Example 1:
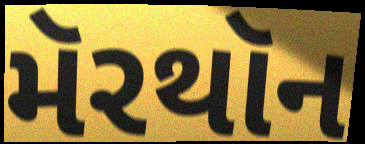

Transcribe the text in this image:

મૅરથૉન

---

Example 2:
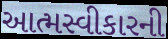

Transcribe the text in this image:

આત્મસ્વીકારની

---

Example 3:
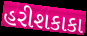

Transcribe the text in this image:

હરીશકાકા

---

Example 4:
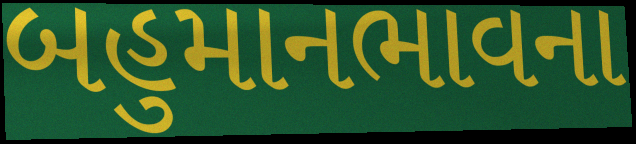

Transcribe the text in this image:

બહુમાનભાવના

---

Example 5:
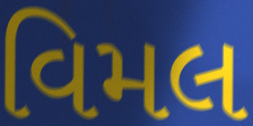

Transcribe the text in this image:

વિમલ